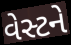
વેસ્ટને